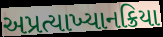
અપ્રત્યાખ્યાનક્રિયા